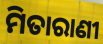
ମିତାରାଣୀ